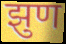
झुण